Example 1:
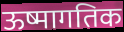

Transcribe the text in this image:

ऊष्मागतिक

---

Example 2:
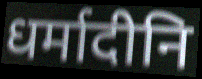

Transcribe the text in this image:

धर्मादीनि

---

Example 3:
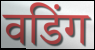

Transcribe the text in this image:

वडिंग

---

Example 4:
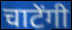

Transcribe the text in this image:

चाटेंगी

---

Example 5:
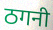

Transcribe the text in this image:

ठगनी